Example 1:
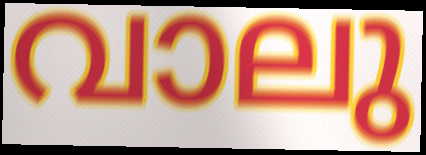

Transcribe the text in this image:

വാലു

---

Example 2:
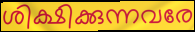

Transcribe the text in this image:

ശിക്ഷിക്കുന്നവരേ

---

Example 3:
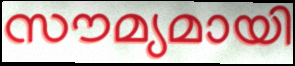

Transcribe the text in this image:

സൗമ്യമായി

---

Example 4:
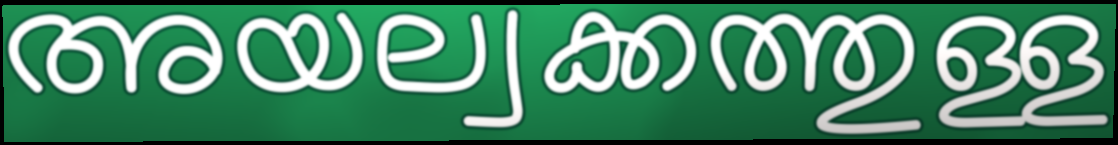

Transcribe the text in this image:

അയല്വക്കത്തുള്ള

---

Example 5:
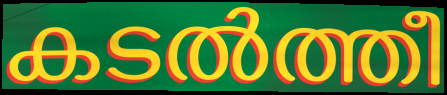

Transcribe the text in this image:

കടൽത്തീ